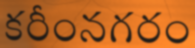
కరీంనగరం